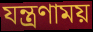
যন্ত্রণাময়